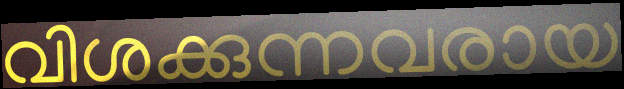
വിശക്കുന്നവരായ